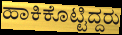
ಹಾಕಿಕೊಟ್ಟಿದ್ದರು